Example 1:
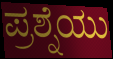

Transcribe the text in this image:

ಪ್ರಶ್ನೆಯು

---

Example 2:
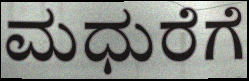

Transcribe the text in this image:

ಮಧುರೆಗೆ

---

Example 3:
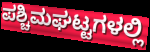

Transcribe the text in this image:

ಪಶ್ಚಿಮಘಟ್ಟಗಳಲ್ಲಿ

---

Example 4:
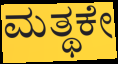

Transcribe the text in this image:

ಮತ್ಥಕೇ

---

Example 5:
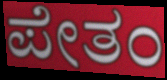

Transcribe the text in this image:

ಪೇತಂ